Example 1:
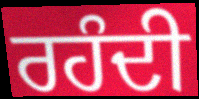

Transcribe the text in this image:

ਰਹੰਦੀ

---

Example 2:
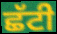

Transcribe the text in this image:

ਛੱਟੀ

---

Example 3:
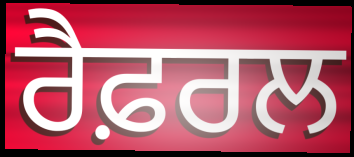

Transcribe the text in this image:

ਰੈਫ਼ਰਲ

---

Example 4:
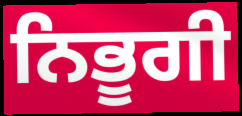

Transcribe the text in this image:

ਨਿਭੂਗੀ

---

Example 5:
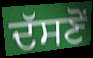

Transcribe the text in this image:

ਦੱਸਣੋਂ